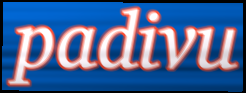
padivu